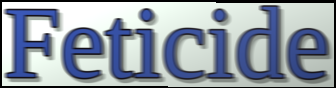
Feticide